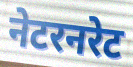
नेटरनरेट